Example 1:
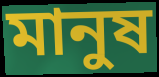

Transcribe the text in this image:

মানুষ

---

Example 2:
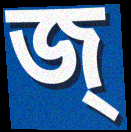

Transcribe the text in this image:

জ্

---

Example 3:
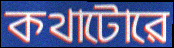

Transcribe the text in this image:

কথাটোৱে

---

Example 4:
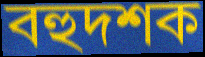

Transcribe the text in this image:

বহুদশক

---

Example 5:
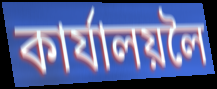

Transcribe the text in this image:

কাৰ্যালয়লৈ